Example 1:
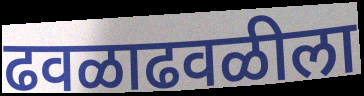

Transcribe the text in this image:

ढवळाढवळीला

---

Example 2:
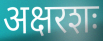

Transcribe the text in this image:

अक्षरशः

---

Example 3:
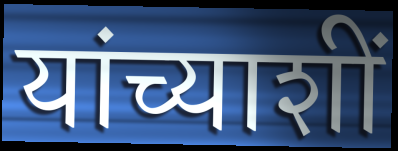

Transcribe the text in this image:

यांच्याशीं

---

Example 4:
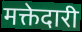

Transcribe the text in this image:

मक्तेदारी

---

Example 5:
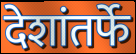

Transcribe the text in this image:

देशांतर्फे